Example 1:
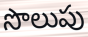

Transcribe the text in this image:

సొలుపు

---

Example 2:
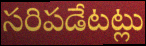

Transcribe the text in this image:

సరిపడేటట్లు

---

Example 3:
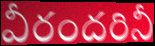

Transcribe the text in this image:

వీరందరినీ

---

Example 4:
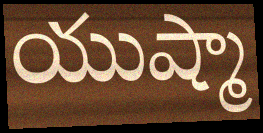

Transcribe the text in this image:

యుష్మా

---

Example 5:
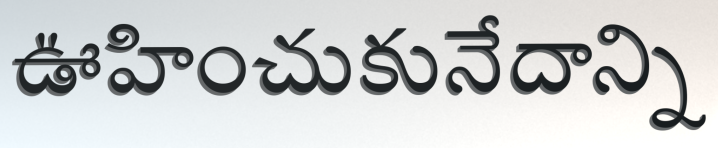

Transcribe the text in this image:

ఊహించుకునేదాన్ని